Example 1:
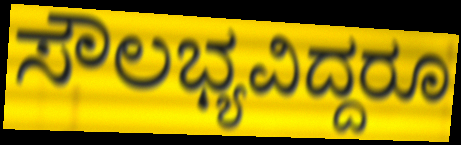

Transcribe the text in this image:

ಸೌಲಭ್ಯವಿದ್ದರೂ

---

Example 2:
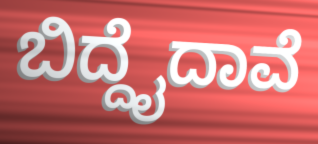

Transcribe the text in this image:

ಬಿದ್ದೈದಾವೆ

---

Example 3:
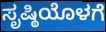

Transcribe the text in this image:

ಸೃಷ್ಠಿಯೊಳಗೆ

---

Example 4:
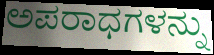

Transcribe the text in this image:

ಅಪರಾಧಗಳನ್ನು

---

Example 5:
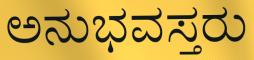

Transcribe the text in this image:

ಅನುಭವಸ್ತರು